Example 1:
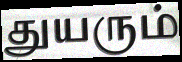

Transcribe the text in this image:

துயரும்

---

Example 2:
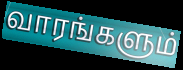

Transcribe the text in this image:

வாரங்களும்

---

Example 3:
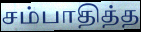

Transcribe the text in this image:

சம்பாதித்த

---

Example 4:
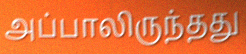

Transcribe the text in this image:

அப்பாலிருந்தது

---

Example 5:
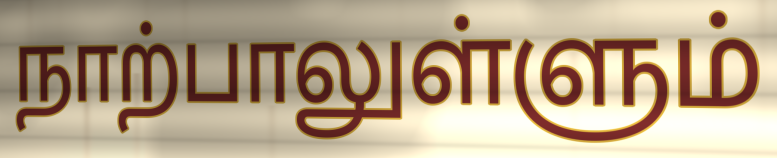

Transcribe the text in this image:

நாற்பாலுள்ளும்